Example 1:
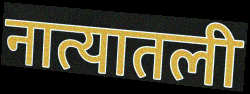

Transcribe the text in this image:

नात्यातली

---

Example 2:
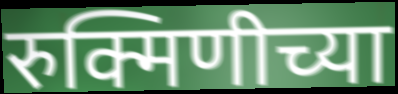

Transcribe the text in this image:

रुक्मिणीच्या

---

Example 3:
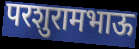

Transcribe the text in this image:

परशुरामभाऊ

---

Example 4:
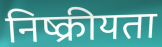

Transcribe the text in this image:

निष्क्रीयता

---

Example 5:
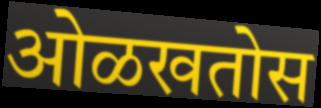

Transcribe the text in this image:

ओळखतोस